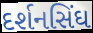
દર્શનસિંઘ